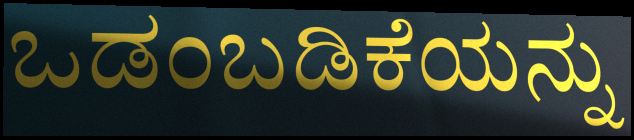
ಒಡಂಬಡಿಕೆಯನ್ನು